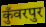
कुँवरपुर